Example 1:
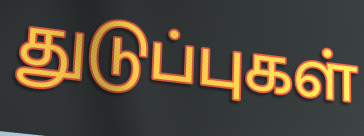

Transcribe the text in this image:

துடுப்புகள்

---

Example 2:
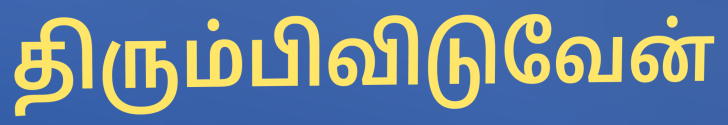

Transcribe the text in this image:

திரும்பிவிடுவேன்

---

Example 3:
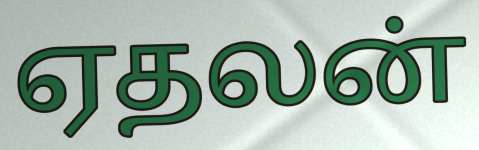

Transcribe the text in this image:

ஏதலன்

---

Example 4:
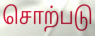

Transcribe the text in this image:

சொற்படு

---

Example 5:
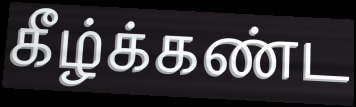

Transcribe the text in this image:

கீழ்க்கண்ட